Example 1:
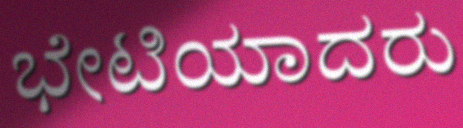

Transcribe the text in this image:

ಭೇಟಿಯಾದರು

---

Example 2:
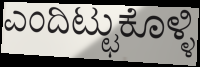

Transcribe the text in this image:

ಎಂದಿಟ್ಟುಕೊಳ್ಳಿ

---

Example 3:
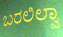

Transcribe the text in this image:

ಬರಲಿಲ್ವಾ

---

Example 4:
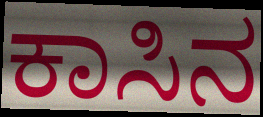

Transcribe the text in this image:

ಕಾಸಿನ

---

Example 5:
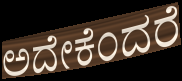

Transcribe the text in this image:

ಅದೇಕೆಂದರೆ